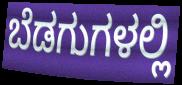
ಬೆಡಗುಗಳಲ್ಲಿ